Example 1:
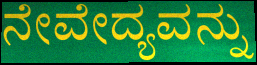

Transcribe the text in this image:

ನೇವೇದ್ಯವನ್ನು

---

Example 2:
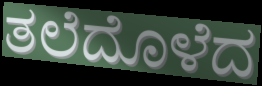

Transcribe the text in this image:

ತಲೆದೊಳೆದ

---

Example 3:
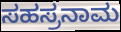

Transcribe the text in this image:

ಸಹಸ್ರನಾಮ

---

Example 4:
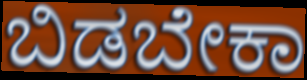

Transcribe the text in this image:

ಬಿಡಬೇಕಾ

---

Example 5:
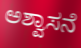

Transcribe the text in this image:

ಅಶ್ವಾಸನೆ